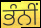
ਭੰਨੀਂ